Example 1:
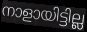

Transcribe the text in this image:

നാളായിട്ടില്ല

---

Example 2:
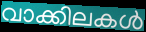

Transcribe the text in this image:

വാക്കിലകൾ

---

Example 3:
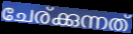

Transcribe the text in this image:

ചേര്ക്കുന്നത്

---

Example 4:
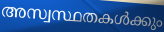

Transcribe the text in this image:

അസ്വസ്ഥതകൾക്കും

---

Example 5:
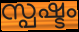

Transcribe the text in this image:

സ്പഷ്ടം